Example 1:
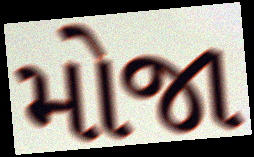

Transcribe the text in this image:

મોજા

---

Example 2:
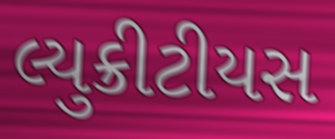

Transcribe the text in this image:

લ્યુક્રીટીયસ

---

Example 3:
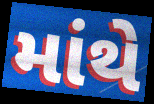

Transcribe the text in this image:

માંથે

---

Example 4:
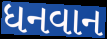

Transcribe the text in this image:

ધનવાન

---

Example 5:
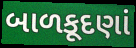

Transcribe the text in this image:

બાળકૂદણાં